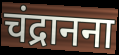
चंद्रानना